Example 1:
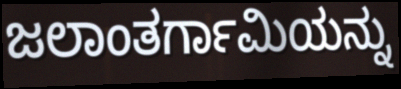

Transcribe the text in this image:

ಜಲಾಂತರ್ಗಾಮಿಯನ್ನು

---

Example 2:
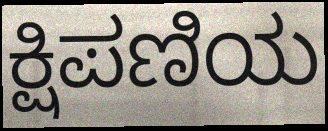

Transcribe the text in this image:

ಕ್ಷಿಪಣಿಯ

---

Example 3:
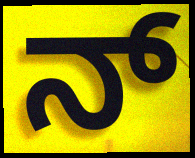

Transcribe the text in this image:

ನ್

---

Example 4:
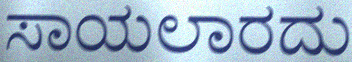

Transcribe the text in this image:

ಸಾಯಲಾರದು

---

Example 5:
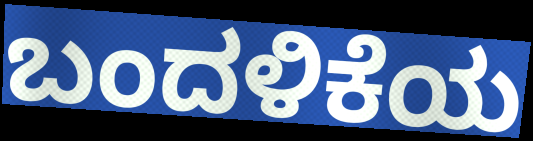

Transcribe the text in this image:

ಬಂದಳಿಕೆಯ